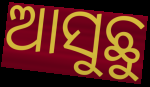
ଆସୁଛୁ